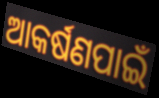
ଆକର୍ଷଣପାଇଁ